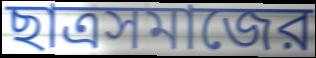
ছাত্রসমাজের